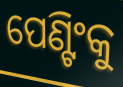
ପେଣ୍ଟିଂକୁ